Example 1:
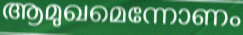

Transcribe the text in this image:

ആമുഖമെന്നോണം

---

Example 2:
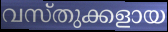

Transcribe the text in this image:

വസ്തുക്കളായ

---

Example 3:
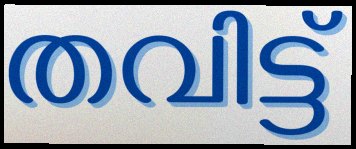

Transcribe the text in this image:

തവിട്ട്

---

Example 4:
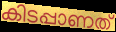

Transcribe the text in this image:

കിടപ്പാണത്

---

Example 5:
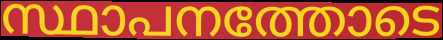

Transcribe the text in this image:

സ്ഥാപനത്തോടെ